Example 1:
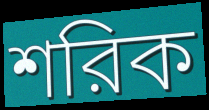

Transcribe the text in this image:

শরিক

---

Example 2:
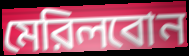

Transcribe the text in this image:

মেরিলবোন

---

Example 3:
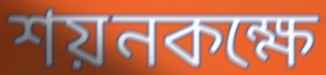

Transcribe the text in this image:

শয়নকক্ষে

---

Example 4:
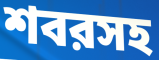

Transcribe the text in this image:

শবরসহ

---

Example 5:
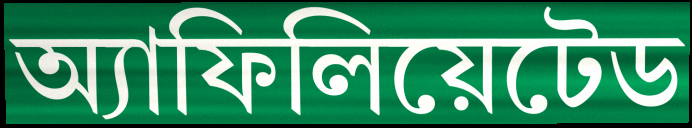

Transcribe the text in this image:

অ্যাফিলিয়েটেড